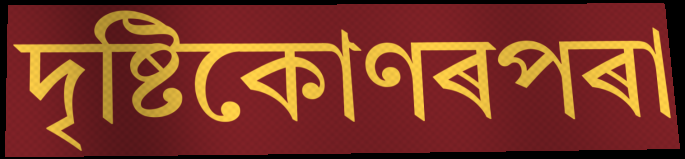
দৃষ্টিকোণৰপৰা